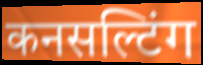
कनसल्टिंग